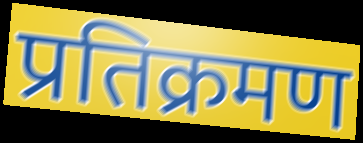
प्रतिक्रमण